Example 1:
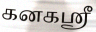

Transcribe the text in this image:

கனகஸ்ரீ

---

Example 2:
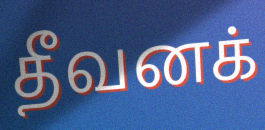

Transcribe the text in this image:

தீவனக்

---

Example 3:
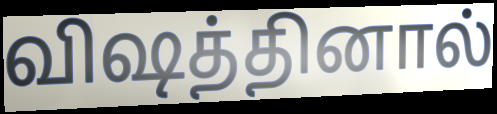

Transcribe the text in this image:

விஷத்தினால்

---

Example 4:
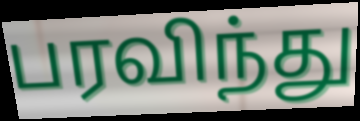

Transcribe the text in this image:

பரவிந்து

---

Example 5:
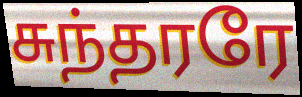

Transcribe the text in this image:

சுந்தரரே